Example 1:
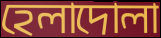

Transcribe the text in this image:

হেলাদোলা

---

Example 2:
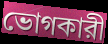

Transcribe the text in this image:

ভোগকারী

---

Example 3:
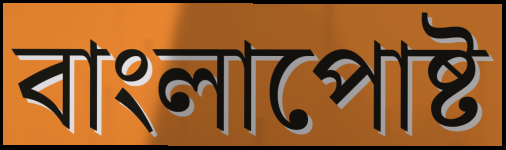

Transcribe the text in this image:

বাংলাপোষ্ট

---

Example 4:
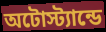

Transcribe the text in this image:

অটোস্ট্যান্ডে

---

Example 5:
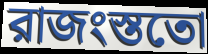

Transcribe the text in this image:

রাজংস্ততো